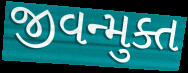
જીવન્મુક્ત